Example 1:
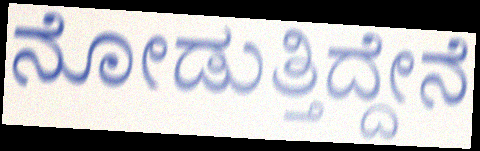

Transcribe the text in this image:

ನೋಡುತ್ತಿದ್ದೇನೆ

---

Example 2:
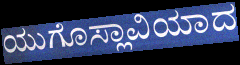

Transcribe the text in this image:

ಯುಗೊಸ್ಲಾವಿಯಾದ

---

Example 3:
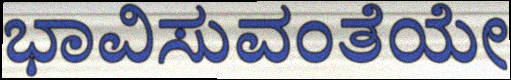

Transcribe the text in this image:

ಭಾವಿಸುವಂತೆಯೇ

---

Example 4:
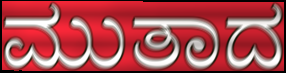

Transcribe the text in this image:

ಮುತಾದ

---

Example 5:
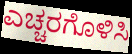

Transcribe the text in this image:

ಎಚ್ಚರಗೊಳಿಸಿ